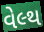
વેલ્થ